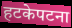
हटकेपटना